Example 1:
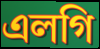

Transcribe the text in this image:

এলগি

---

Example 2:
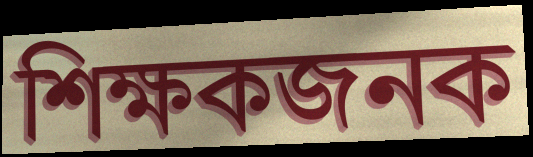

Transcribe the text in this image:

শিক্ষকজনক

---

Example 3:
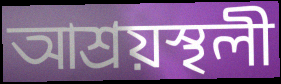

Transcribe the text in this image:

আশ্ৰয়স্থলী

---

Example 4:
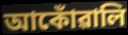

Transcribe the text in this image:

আকোঁৱালি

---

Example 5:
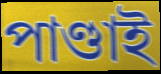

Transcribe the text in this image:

পাণ্ডাই